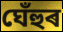
ঘেঁহুৰ